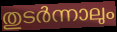
തുടർന്നാലും